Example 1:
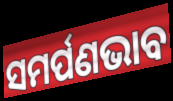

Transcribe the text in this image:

ସମର୍ପଣଭାବ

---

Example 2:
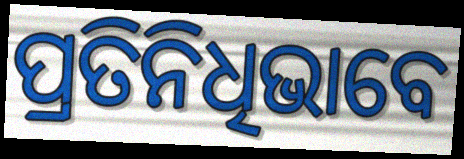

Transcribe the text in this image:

ପ୍ରତିନିଧିଭାବେ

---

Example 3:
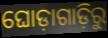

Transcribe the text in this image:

ଘୋଡ଼ାଗାଡ଼ିରୁ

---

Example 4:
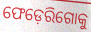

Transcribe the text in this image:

ଫେଡ଼େରିଗୋକୁ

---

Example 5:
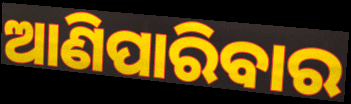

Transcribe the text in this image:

ଆଣିପାରିବାର